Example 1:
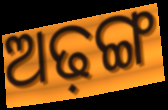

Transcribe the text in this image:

ଅଢ଼ଙ୍ଗ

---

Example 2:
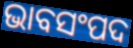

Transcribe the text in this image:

ଭାବସଂପଦ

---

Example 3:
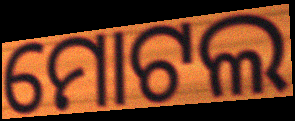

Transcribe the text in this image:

ମୋଟଲ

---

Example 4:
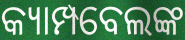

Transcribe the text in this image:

କ୍ୟାମ୍ପବେଲଙ୍କ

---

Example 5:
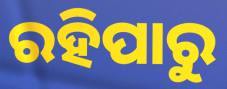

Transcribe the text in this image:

ରହିପାରୁ